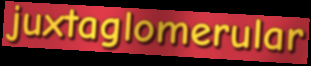
juxtaglomerular